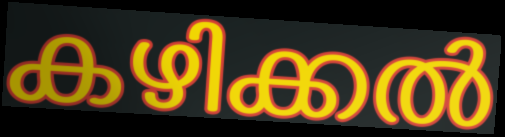
കഴിക്കൽ